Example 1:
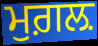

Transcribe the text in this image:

ਮੁਗ਼ਲ਼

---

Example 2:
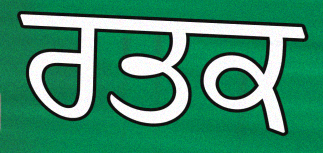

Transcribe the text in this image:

ਰਤਕ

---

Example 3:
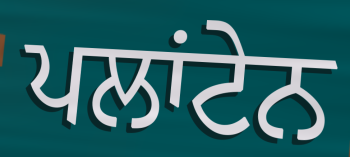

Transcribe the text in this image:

ਪਲਾਂਟੇਨ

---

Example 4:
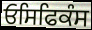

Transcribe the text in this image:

ਓਸਿਫਿਕੰਸ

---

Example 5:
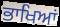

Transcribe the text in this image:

ਭਾਖਿਆਂ